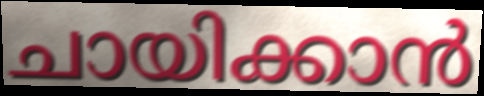
ചായിക്കാൻ